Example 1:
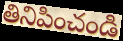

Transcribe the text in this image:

తినిపించండి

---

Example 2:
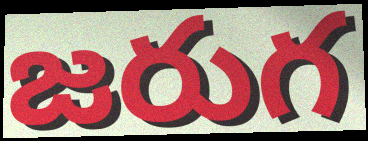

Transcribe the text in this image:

జరుగ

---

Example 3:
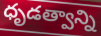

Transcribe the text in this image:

ధృడత్వాన్ని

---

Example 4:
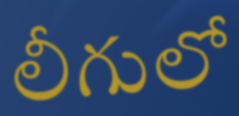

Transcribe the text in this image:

లీగులో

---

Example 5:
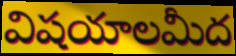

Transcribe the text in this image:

విషయాలమీద